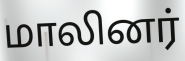
மாலினர்